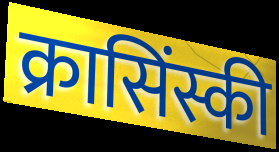
क्रासिंस्की